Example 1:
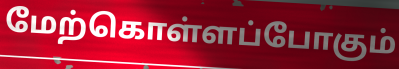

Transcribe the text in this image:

மேற்கொள்ளப்போகும்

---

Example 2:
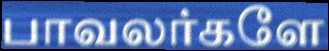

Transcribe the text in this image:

பாவலர்களே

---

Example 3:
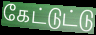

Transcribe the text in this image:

கேட்டுட்டு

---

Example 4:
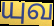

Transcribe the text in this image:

யுவ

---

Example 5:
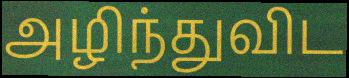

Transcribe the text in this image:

அழிந்துவிட